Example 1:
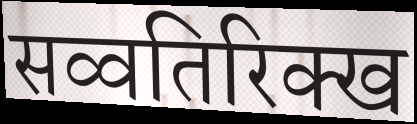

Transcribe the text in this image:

सव्वतिरिक्ख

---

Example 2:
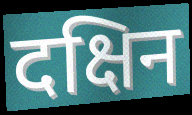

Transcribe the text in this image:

दक्षिन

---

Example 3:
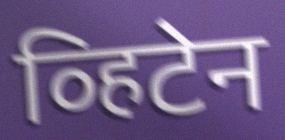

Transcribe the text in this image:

व्हिटेन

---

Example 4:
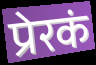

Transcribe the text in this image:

प्रेरकं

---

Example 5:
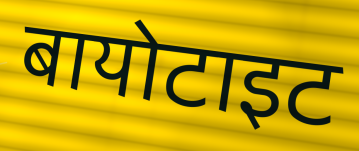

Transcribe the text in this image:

बायोटाइट